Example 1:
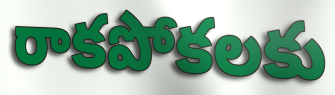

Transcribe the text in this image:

రాకపోకలకు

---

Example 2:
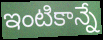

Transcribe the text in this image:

ఇంటికాన్నే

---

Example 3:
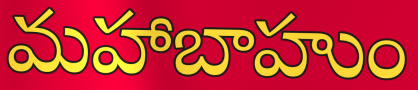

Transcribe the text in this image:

మహాబాహుం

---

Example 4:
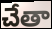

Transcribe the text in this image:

చేతా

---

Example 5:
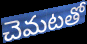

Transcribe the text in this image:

చెమటతో